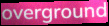
overground